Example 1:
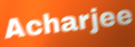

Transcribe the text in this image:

Acharjee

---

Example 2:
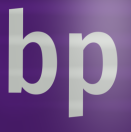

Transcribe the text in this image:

bp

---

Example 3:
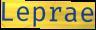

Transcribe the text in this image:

Leprae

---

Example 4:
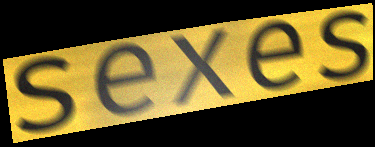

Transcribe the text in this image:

sexes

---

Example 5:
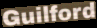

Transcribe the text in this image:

Guilford